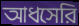
আধসেরি